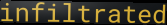
infiltrated